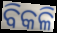
ବିକଳି